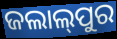
ଜଲାଲ୍‍ପୁର